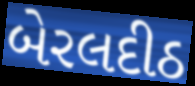
બેરલદીઠ